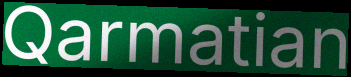
Qarmatian